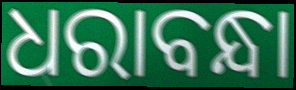
ଧରାବନ୍ଧା